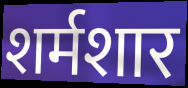
शर्मशार